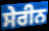
ਸੇਰੀਨ